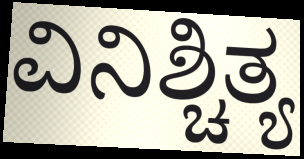
ವಿನಿಶ್ಚಿತ್ಯ